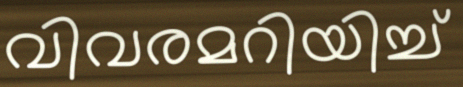
വിവരമറിയിച്ച്